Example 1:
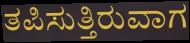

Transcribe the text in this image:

ತಪಿಸುತ್ತಿರುವಾಗ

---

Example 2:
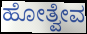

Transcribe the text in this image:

ಹೋತ್ವೇವ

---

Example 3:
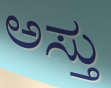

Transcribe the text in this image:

ಅಸ್ತು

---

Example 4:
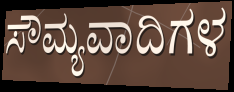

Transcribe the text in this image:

ಸೌಮ್ಯವಾದಿಗಳ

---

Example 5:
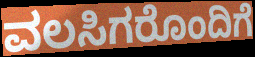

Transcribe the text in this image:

ವಲಸಿಗರೊಂದಿಗೆ